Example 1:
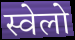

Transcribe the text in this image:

स्वेलो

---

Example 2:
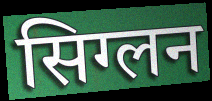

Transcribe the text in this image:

सिग्‍लन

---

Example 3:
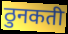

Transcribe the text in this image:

ठुनकती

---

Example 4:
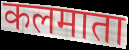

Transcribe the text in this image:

कलमाता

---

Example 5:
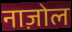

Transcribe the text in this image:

नाज़ोल